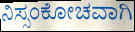
ನಿಸ್ಸಂಕೋಚವಾಗಿ